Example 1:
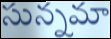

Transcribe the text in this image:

సున్నమా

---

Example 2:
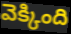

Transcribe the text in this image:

వెక్కింది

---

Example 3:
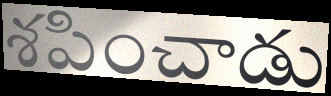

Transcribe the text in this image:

శపించాడు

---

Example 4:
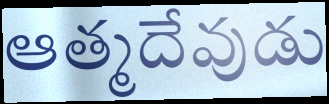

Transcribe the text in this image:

ఆత్మదేవుడు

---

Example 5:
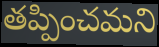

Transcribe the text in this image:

తప్పించమని